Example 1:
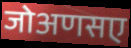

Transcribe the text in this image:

जोअणसए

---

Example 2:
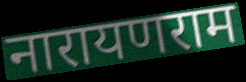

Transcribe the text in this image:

नारायणराम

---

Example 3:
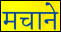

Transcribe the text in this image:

मचाने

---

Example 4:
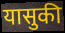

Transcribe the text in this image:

यासुकी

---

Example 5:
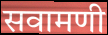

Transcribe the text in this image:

सवामणी